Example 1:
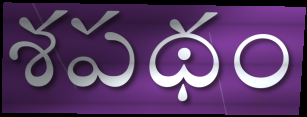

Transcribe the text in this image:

శపథం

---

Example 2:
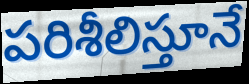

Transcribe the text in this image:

పరిశీలిస్తూనే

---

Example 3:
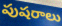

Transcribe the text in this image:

పుషరాలు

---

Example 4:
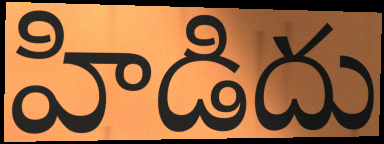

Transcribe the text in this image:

హిడిదు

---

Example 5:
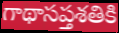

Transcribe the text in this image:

గాథాసప్తశతికి